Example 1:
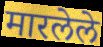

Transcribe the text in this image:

मारलेले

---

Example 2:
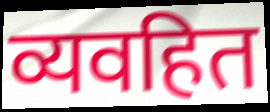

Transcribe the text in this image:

व्यवहित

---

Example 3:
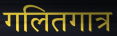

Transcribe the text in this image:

गलितगात्र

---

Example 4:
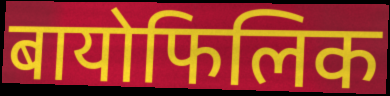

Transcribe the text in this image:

बायोफिलिक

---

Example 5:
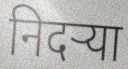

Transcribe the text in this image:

निदऱ्या